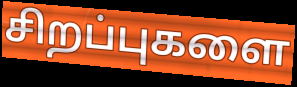
சிறப்புகளை